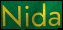
Nida